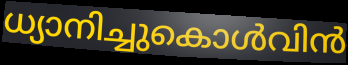
ധ്യാനിച്ചുകൊൾവിൻ